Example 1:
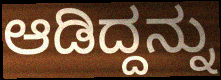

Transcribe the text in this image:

ಆಡಿದ್ದನ್ನು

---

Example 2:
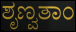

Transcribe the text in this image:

ಶೃಣ್ವತಾಂ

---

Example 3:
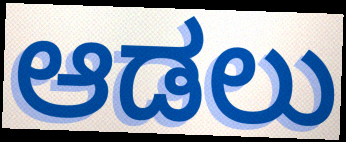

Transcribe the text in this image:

ಆಡಲು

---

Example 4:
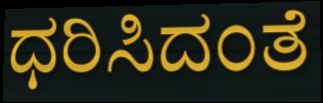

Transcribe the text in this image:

ಧರಿಸಿದಂತೆ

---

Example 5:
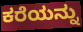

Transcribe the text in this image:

ಕರೆಯನ್ನು